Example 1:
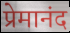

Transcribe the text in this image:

प्रेमानंद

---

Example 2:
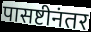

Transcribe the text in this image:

पासष्टीनंतर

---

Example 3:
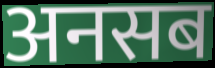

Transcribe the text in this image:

अनसब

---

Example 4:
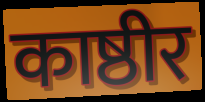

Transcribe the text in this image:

काष्ठीर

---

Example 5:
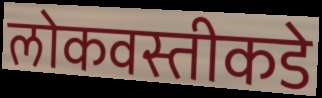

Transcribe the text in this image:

लोकवस्तीकडे